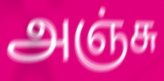
அஞ்சு